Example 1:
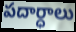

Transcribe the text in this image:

పదార్ధాలు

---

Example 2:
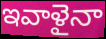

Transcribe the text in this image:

ఇవాళైనా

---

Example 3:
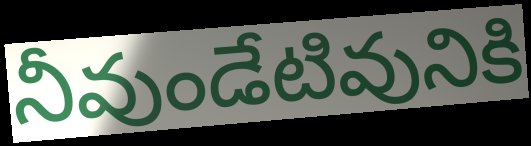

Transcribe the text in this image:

నీవుండేటివునికి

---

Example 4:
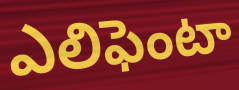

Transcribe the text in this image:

ఎలిఫెంటా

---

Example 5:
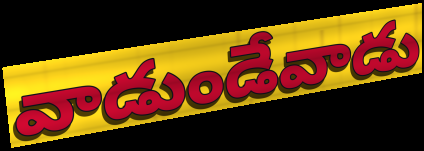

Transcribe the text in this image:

వాడుండేవాడు